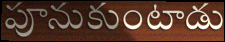
పూనుకుంటాడు